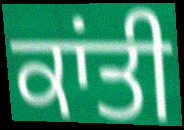
ਕਾਂਤੀ